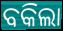
ବକିଲା